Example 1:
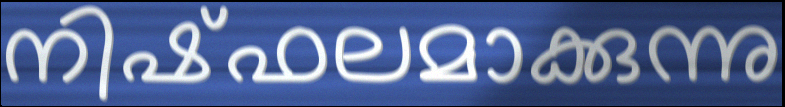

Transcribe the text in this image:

നിഷ്ഫലമാക്കുന്നു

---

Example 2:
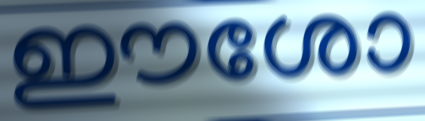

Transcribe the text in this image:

ഈശോ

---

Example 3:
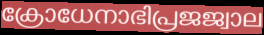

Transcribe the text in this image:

ക്രോധേനാഭിപ്രജജ്വാല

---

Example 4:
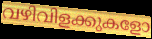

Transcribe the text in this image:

വഴിവിളക്കുകളോ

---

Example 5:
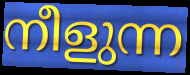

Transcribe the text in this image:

നീളുന്ന